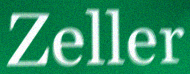
Zeller